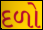
દળો